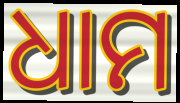
ଧାମ